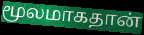
மூலமாகதான்